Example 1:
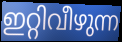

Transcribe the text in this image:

ഇറ്റിവീഴുന്ന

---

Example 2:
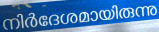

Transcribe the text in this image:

നിർദേശമായിരുന്നു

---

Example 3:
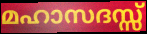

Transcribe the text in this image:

മഹാസദസ്സ്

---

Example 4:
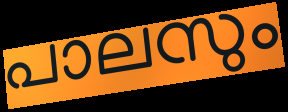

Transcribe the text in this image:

പാലസും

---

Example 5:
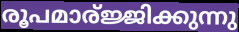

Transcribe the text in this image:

രൂപമാര്ജ്ജിക്കുന്നു